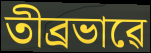
তীব্ৰভাৱে